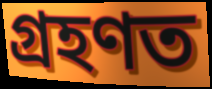
গ্ৰহণত